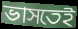
ভাসতেই